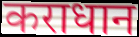
कराधान